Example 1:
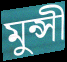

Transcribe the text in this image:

মুন্সী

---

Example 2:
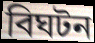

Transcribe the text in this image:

বিঘটন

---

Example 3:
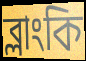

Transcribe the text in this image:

ব্লাংকি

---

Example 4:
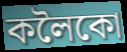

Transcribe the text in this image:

কলৈকো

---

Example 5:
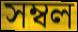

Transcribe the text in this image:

সম্বল